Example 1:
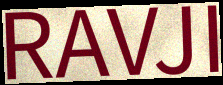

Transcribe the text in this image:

RAVJI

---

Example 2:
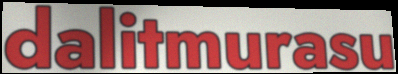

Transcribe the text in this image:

dalitmurasu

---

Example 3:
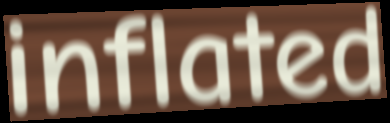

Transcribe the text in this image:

inflated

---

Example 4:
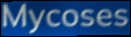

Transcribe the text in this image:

Mycoses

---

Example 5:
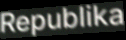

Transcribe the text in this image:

Republika